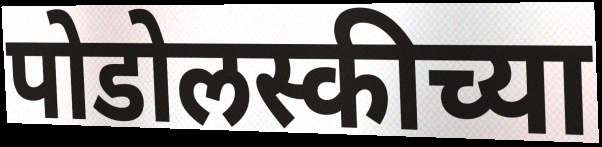
पोडोलस्कीच्या